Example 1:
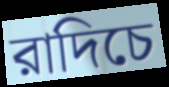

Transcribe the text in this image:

রাদিচে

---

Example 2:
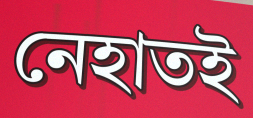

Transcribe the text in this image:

নেহাতই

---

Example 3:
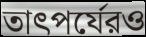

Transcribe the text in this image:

তাৎপর্যেরও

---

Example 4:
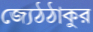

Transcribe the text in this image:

জ্যেঠঠাকুর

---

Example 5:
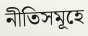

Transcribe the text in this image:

নীতিসমূহে